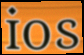
ios